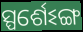
ସ୍ପର୍ଶେଽଙ୍ଗ